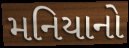
મનિયાનો